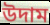
উদাম